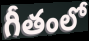
గీతంలో